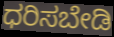
ಧರಿಸಬೇಡಿ